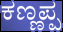
ಕಣ್ಣಪ್ಪ